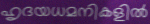
ഹൃദയധമനികളിൽ